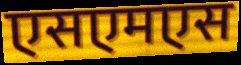
एसएमएस